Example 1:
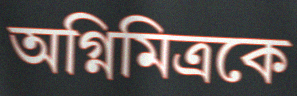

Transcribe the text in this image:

অগ্নিমিত্রকে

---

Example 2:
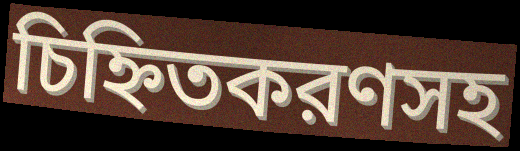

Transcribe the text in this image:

চিহ্নিতকরণসহ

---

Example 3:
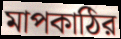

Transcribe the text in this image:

মাপকাঠির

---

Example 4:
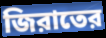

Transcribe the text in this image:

জিরাতের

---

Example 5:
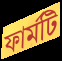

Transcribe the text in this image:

ফার্মটি